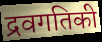
द्रवगतिकी